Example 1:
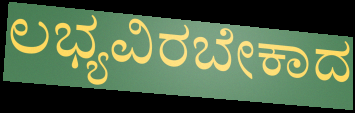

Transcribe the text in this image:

ಲಭ್ಯವಿರಬೇಕಾದ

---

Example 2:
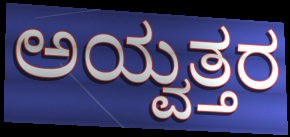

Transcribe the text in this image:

ಅಯ್ವತ್ತರ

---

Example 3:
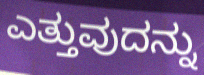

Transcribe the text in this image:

ಎತ್ತುವುದನ್ನು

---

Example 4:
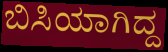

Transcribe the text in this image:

ಬಿಸಿಯಾಗಿದ್ದ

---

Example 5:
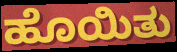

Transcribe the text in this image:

ಹೊಯಿತು